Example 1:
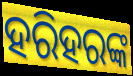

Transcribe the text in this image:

ହରିହରଙ୍କ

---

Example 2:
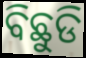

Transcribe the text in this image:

ବିଛୁଡି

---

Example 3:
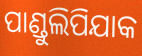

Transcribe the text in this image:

ପାଣ୍ଡୁଲିପିଯାକ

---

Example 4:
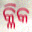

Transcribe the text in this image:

କ୍ଳିକ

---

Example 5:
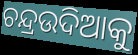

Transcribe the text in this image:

ଚନ୍ଦ୍ରଉଦିଆକୁ